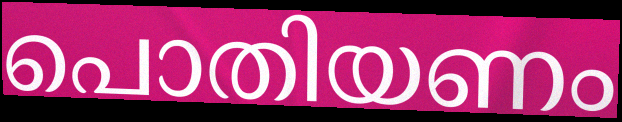
പൊതിയണം